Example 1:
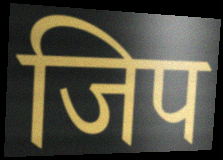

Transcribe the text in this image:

जिप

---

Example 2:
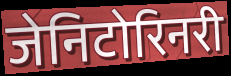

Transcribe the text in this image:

जेनिटोरिनरी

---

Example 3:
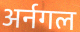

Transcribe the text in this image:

अर्नगल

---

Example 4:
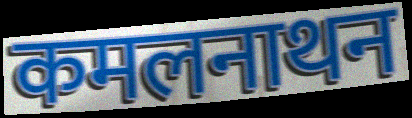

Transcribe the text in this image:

कमलनाथन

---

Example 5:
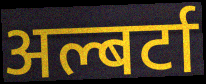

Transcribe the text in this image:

अल्बर्टा